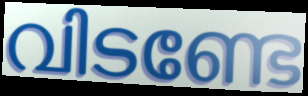
വിടണ്ടേ